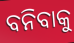
ବନିବାକୁ